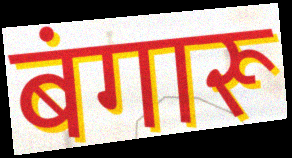
बंगारू